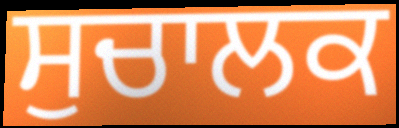
ਸੁਚਾਲਕ